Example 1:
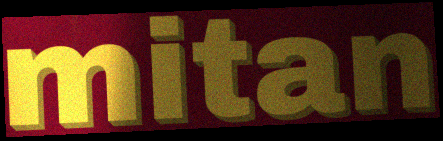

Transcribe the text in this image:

mitan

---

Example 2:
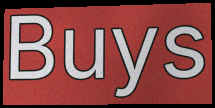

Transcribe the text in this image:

Buys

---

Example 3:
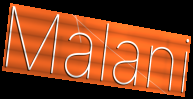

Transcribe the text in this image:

Malani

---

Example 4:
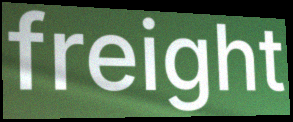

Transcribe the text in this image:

freight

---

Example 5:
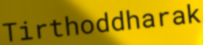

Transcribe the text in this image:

Tirthoddharak